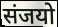
संजयो